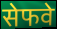
सेफवे